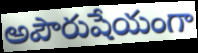
అపౌరుషేయంగా